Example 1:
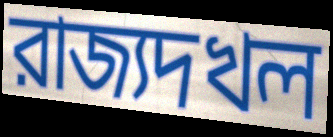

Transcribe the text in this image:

রাজ্যদখল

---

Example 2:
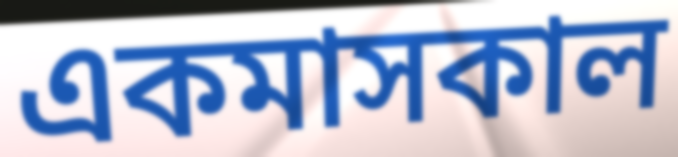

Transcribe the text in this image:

একমাসকাল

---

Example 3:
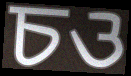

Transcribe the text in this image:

চও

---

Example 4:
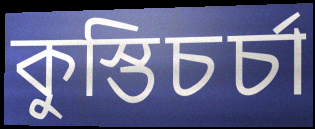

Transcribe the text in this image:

কুস্তিচর্চা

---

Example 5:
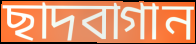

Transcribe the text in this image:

ছাদবাগান